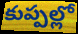
కుప్పల్లో